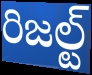
రిజల్ట్